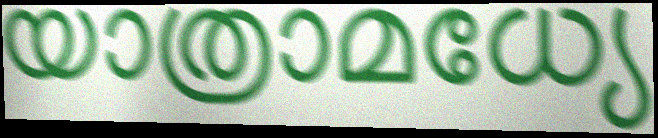
യാത്രാമധ്യേ